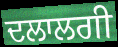
ਦਲਾਲਗੀ